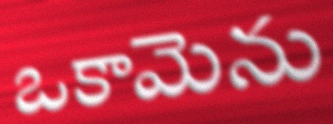
ఒకామెను